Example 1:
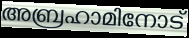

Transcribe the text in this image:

അബ്രഹാമിനോട്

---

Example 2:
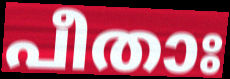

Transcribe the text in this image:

പീതാഃ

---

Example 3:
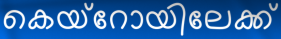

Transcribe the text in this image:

കെയ്റോയിലേക്ക്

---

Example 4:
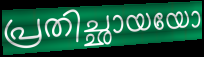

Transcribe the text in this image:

പ്രതിച്ഛായയോ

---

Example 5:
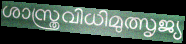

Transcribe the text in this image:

ശാസ്ത്രവിധിമുത്സൃജ്യ